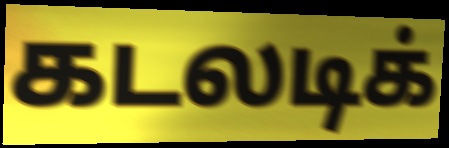
கடலடிக்